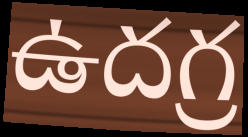
ఉదగ్ర